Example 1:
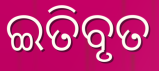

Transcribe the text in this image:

ଇତିବୃତ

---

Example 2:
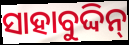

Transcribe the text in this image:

ସାହାବୁଦ୍ଦିନ୍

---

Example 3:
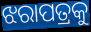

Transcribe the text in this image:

ଝରାପତ୍ରକୁ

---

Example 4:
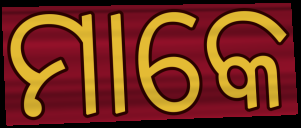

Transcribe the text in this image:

ମାକେ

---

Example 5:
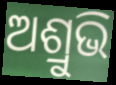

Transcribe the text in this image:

ଅଶ୍ରୁଭି